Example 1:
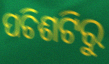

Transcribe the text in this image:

ପଚିଶଟିରୁ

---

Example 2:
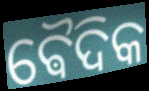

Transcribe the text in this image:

ଵୈଦିକ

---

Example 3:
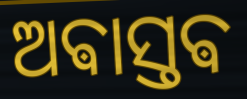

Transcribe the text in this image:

ଅଵାସ୍ତଵ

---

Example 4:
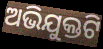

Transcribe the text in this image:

ଅଭିଯୁକ୍ତଟି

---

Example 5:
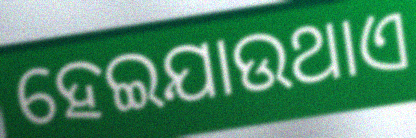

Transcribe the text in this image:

ହେଇଯାଉଥାଏ